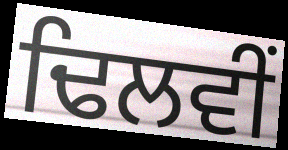
ਢਿਲਵੀਂ